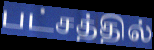
பட்சத்தில்